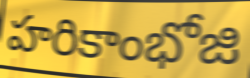
హరికాంభోజి